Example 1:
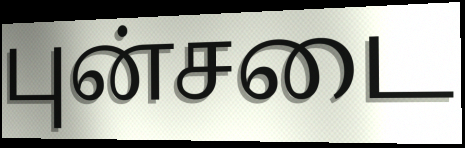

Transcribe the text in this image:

புன்சடை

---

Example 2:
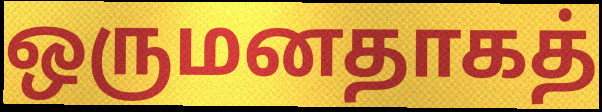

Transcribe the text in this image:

ஒருமனதாகத்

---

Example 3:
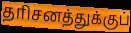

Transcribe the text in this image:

தரிசனத்துக்குப்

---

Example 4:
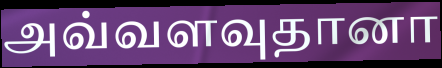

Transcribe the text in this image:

அவ்வளவுதானா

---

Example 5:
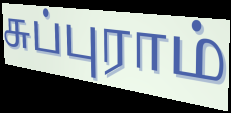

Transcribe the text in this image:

சுப்புராம்